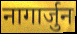
नागार्जुन